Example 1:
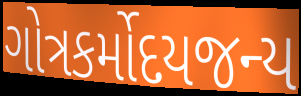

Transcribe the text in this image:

ગોત્રકર્મોદયજન્ય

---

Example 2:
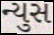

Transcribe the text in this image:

ન્યુસ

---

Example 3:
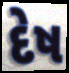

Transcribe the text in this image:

દેષ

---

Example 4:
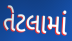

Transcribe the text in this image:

તેટલામાં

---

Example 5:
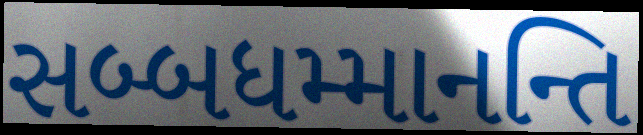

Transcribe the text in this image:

સબ્બધમ્માનન્તિ